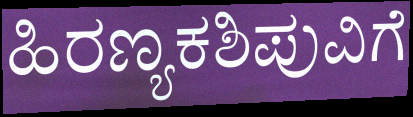
ಹಿರಣ್ಯಕಶಿಪುವಿಗೆ